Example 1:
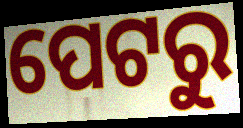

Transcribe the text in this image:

ପେଟରୁ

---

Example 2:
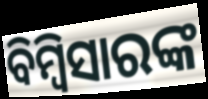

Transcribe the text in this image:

ବିମ୍ବିସାରଙ୍କ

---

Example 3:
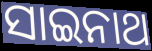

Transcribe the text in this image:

ସାଇନାଥ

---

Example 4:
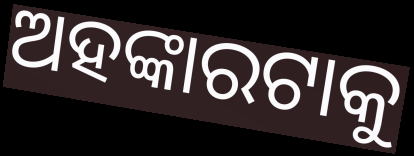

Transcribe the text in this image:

ଅହଙ୍କାରଟାକୁ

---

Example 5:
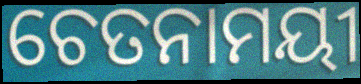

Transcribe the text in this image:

ଚେତନାମୟୀ